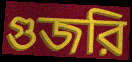
গুজরি